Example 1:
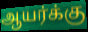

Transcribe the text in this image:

ஆயர்க்கு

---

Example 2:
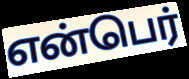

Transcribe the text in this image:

என்பெர்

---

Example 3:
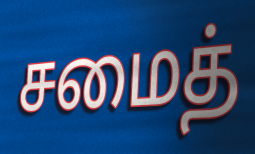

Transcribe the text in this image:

சமைத்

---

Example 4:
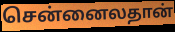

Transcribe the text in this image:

சென்னைலதான்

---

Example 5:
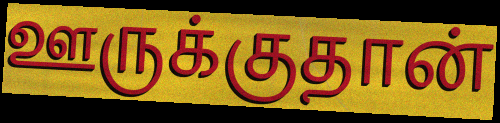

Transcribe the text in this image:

ஊருக்குதான்